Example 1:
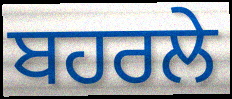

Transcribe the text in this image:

ਬਹਰਲੇ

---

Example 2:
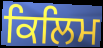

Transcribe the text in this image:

ਕਿਲਿਮ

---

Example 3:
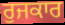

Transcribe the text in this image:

ਰੁਜਕਾਰ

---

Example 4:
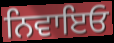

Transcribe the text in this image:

ਨਿਵਾਇਓ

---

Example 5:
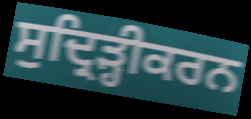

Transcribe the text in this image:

ਸੁਦ੍ਰਿੜ੍ਹੀਕਰਨ